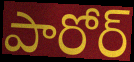
పారోర్